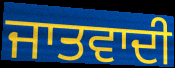
ਜਾਤਵਾਦੀ